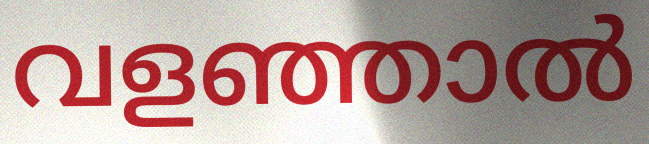
വളഞ്ഞാൽ